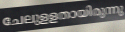
ചേലുളളതായിരുന്നു